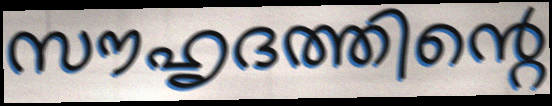
സൗഹൃദത്തിന്റെ